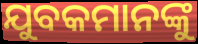
ଯୁବକମାନଙ୍କୁ